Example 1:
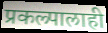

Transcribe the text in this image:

प्रकल्पालाही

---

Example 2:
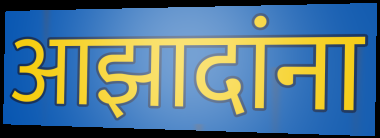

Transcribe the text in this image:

आझादांना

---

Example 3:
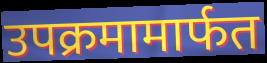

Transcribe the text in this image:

उपक्रमामार्फत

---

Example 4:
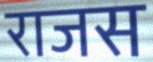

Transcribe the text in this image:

राजस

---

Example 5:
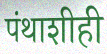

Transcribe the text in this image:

पंथाशीही